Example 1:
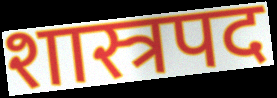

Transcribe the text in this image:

शास्त्रपद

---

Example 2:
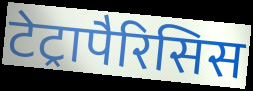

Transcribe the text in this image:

टेट्रापैरिसिस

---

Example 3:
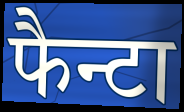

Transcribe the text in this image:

फैन्टा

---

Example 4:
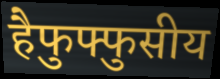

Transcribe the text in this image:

हैफुफ्फुसीय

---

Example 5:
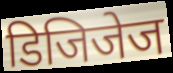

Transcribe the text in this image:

डिजिजेज